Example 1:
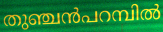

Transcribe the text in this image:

തുഞ്ചൻപറമ്പിൽ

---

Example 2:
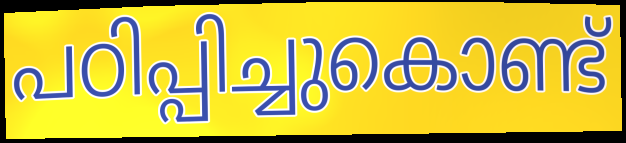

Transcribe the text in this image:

പഠിപ്പിച്ചുകൊണ്ട്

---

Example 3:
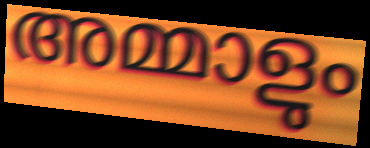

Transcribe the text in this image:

അമ്മാളും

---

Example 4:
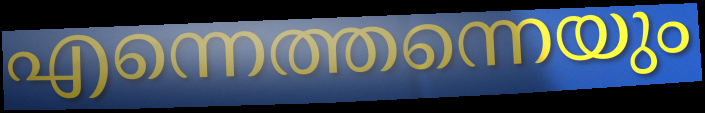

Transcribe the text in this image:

എന്നെത്തന്നെയും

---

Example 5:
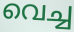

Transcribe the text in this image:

വെച്ച